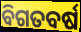
ବିଗତବର୍ଷ